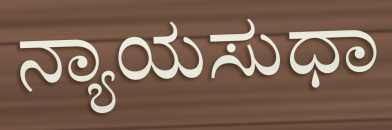
ನ್ಯಾಯಸುಧಾ